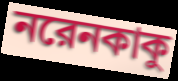
নরেনকাকু